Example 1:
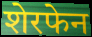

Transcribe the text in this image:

शेरफेन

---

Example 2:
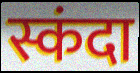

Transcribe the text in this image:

स्कंदा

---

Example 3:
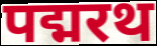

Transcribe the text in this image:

पद्मरथ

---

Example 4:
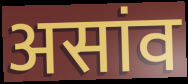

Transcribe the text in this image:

असांव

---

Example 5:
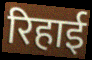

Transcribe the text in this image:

रिहाई